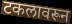
टकलावरून